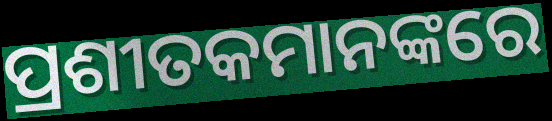
ପ୍ରଶୀତକମାନଙ୍କରେ